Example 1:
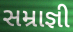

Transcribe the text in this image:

સમ્રાજ્ઞી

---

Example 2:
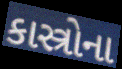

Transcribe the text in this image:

કાસ્ત્રોના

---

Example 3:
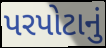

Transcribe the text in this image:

પરપોટાનું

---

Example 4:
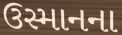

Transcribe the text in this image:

ઉસ્માનના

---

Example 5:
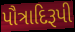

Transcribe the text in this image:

પૌત્રાદિરૂપી